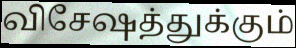
விசேஷத்துக்கும்